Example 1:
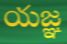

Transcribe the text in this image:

యజ్ఞ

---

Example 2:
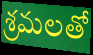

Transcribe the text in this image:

శ్రమలతో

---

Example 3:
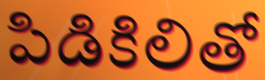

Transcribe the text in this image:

పిడికిలితో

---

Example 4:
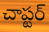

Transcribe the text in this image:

చాప్టర్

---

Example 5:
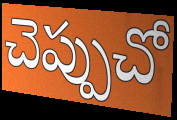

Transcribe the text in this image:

చెప్పుచో